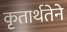
कृतार्थतेने